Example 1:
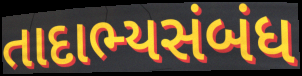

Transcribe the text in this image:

તાદાભ્યસંબંધ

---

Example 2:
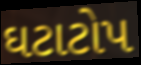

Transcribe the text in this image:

ઘટાટોપ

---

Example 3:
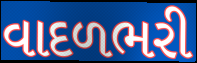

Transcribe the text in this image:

વાદળભરી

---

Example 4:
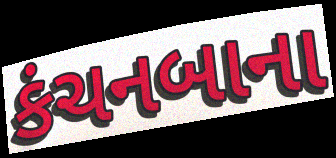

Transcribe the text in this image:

કંચનબાના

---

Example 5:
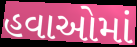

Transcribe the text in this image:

હવાઓમાં